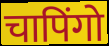
चापिंगो